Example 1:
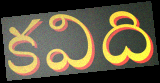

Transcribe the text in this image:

కవిది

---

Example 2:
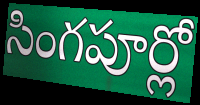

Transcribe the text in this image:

సింగపూర్లో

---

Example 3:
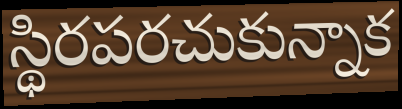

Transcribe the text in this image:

స్థిరపరచుకున్నాక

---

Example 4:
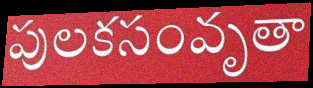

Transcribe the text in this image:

పులకసంవృతా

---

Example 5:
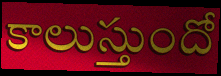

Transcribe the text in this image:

కాలుస్తుందో